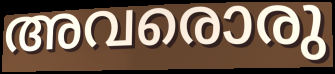
അവരൊരു